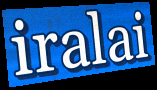
iralai